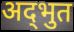
अद्‌भुत